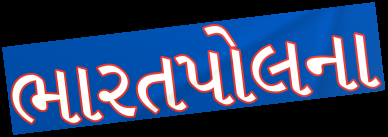
ભારતપોલના